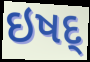
ઇષદ્